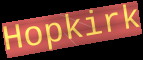
Hopkirk